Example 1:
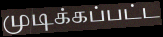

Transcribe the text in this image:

முடிக்கப்பட்ட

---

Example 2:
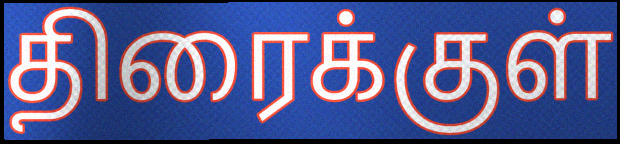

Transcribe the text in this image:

திரைக்குள்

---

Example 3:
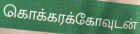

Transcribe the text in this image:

கொக்கரக்கோவுடன்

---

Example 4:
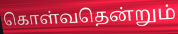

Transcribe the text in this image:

கொள்வதென்றும்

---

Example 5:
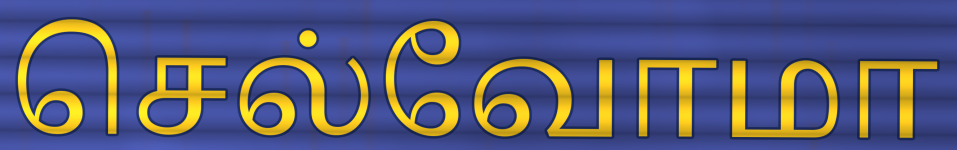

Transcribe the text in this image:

செல்வோமா